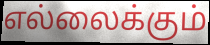
எல்லைக்கும்